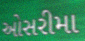
ઓસરીમા